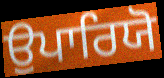
ਉਪਾਰਿਯੋ